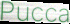
Pucca